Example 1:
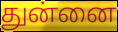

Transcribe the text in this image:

துன்னை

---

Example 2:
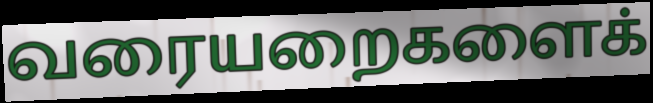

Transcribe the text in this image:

வரையறைகளைக்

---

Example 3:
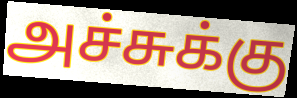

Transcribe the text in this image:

அச்சுக்கு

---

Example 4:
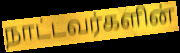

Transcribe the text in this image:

நாட்டவர்களின்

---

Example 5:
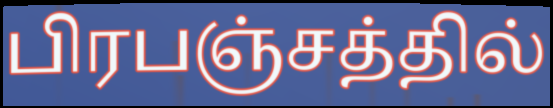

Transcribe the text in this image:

பிரபஞ்சத்தில்